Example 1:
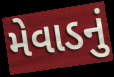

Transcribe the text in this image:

મેવાડનું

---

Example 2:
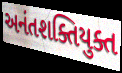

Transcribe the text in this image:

અનંતશક્તિયુક્ત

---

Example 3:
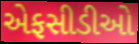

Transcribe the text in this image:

એફસીડીઓ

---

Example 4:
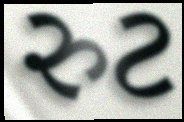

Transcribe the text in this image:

રુટ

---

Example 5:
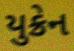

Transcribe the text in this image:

યુક્રેન